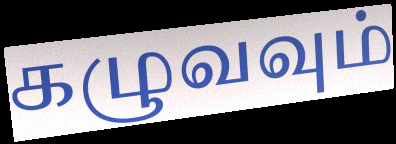
கழுவவும்